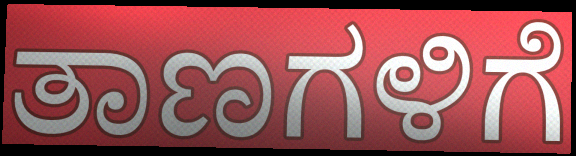
ತಾಣಗಳಿಗೆ